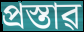
প্ৰস্তাৱ